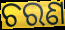
ଚରଣ